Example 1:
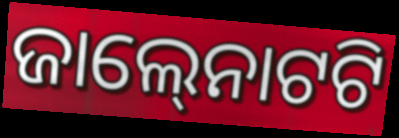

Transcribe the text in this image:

ଜାଲ୍‍ନୋଟଟି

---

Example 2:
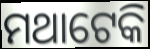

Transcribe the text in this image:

ମଥାଟେକି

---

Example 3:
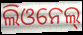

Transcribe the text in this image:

ଲିଓନେଲ୍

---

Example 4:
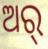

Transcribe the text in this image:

ଅର୍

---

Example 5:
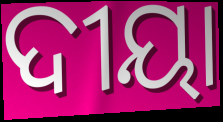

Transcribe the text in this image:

ଦୀୟା